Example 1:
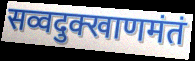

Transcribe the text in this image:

सव्वदुक्खाणमंतं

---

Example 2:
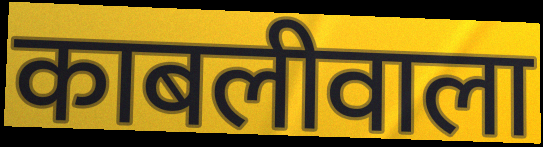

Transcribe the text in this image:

काबलीवाला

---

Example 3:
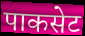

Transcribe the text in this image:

पाकसेट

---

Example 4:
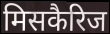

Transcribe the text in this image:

मिसकैरिज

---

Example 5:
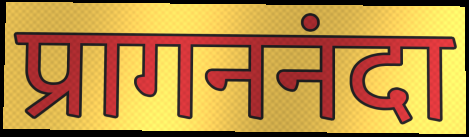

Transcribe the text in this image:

प्रागननंदा